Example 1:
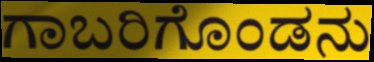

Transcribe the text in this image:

ಗಾಬರಿಗೊಂಡನು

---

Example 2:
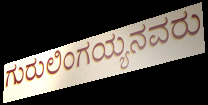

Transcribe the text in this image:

ಗುರುಲಿಂಗಯ್ಯನವರು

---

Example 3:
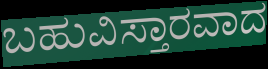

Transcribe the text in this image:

ಬಹುವಿಸ್ತಾರವಾದ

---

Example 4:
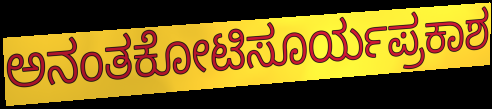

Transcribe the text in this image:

ಅನಂತಕೋಟಿಸೂರ್ಯಪ್ರಕಾಶ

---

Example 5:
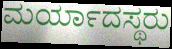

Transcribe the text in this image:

ಮರ್ಯಾದಸ್ಥರು